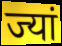
ज्यां